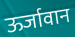
ऊर्जावान